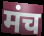
मंच